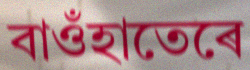
বাওঁহাতেৰে